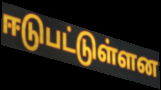
ஈடுபட்டுள்ளன